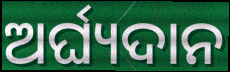
ଅର୍ଘ୍ୟଦାନ